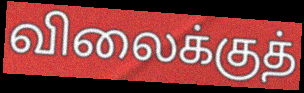
விலைக்குத்